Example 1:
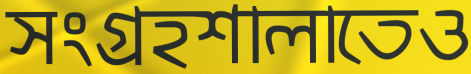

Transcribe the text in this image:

সংগ্রহশালাতেও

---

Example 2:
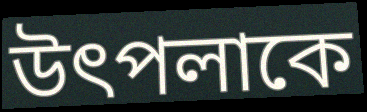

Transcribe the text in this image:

উৎপলাকে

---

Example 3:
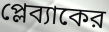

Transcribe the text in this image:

প্লেব্যাকের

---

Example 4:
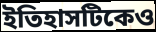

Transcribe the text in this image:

ইতিহাসটিকেও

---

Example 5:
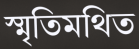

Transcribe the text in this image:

স্মৃতিমথিত